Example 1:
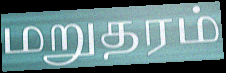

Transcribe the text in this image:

மறுதரம்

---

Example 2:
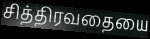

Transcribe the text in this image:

சித்திரவதையை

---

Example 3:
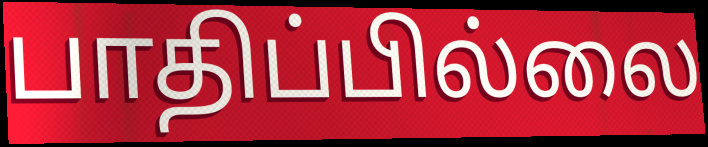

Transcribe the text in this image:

பாதிப்பில்லை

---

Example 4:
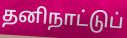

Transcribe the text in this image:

தனிநாட்டுப்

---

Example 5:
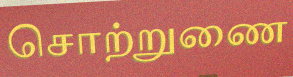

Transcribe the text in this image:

சொற்றுணை